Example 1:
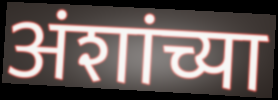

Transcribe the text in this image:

अंशांच्या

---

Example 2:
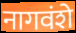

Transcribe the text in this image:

नागवंशे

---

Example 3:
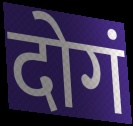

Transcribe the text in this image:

दोगं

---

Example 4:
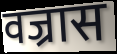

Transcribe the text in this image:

वज्रास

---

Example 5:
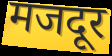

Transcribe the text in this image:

मजदूर